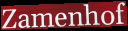
Zamenhof